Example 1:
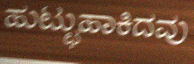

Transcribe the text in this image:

ಹುಟ್ಟುಹಾಕಿದವು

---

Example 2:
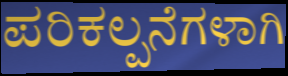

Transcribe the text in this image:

ಪರಿಕಲ್ಪನೆಗಳಾಗಿ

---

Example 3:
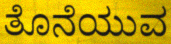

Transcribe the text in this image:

ತೊನೆಯುವ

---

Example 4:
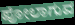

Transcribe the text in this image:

ಪೋಲಾಗುವ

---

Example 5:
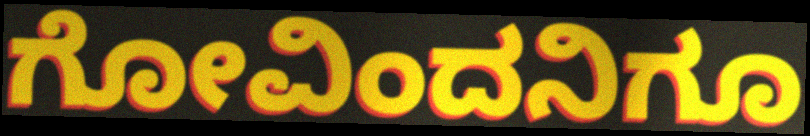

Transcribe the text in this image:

ಗೋವಿಂದನಿಗೂ